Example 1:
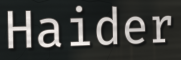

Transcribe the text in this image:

Haider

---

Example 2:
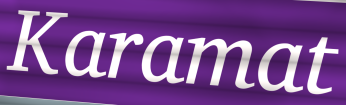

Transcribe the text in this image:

Karamat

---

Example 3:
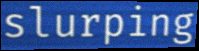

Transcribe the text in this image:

slurping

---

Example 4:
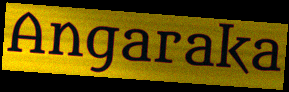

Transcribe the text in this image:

Angaraka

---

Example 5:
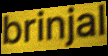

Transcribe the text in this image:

brinjal